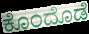
ಕೊಂದೊಡೆ